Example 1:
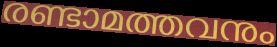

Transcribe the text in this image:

രണ്ടാമത്തവനും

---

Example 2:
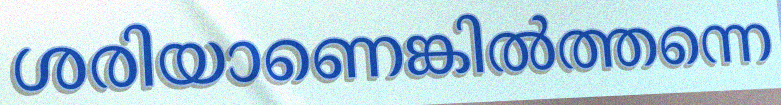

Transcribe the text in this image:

ശരിയാണെങ്കിൽത്തന്നെ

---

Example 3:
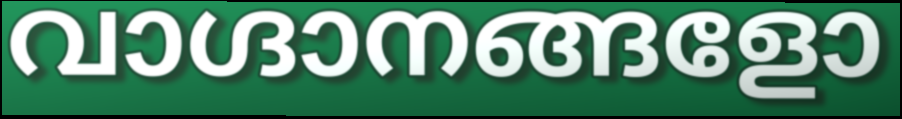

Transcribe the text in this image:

വാഗ്ദാനങ്ങളോ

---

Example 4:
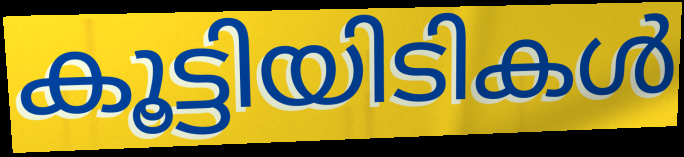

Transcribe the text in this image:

കൂട്ടിയിടികൾ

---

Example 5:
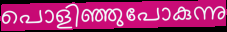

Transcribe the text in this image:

പൊളിഞ്ഞുപോകുന്നു